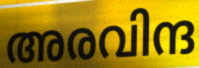
അരവിന്ദ